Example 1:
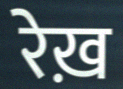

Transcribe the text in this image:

रेख़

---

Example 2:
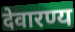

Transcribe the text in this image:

देवारण्य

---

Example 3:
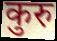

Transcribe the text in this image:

कुरु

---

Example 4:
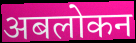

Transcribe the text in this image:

अबलोकन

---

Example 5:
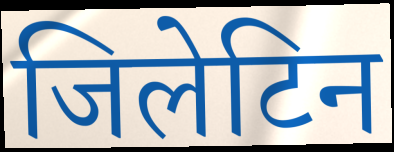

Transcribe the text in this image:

जिलेटिन